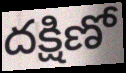
దక్షిణో